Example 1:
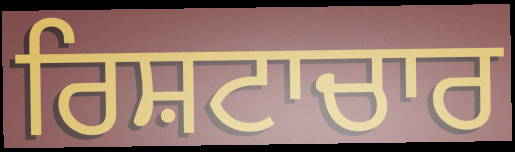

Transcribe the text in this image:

ਰਿਸ਼ਟਾਚਾਰ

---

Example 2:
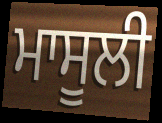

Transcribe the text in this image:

ਮਾਸੂਲੀ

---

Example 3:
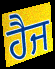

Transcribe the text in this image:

ਹੈਜ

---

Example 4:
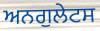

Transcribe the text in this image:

ਅਨਗੁਲੇਟਸ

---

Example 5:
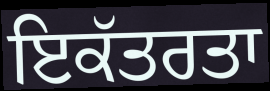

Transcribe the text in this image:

ਇਕੱਤਰਤਾ